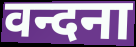
वन्दना